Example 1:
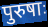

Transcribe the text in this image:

पुरुषाः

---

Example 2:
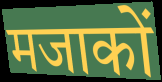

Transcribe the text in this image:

मजाकों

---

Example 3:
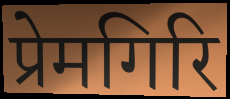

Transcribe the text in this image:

प्रेमगिरि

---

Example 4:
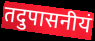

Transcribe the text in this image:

तदुपासनीयं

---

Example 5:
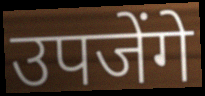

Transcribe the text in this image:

उपजेंगे